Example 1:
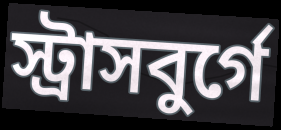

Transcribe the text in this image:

স্ট্রাসবুর্গে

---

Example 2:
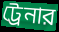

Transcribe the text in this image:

ট্রেনার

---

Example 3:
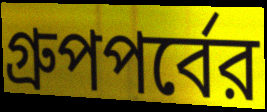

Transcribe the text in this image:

গ্রুপপর্বের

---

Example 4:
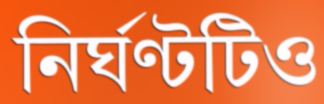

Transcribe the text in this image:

নির্ঘণ্টটিও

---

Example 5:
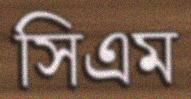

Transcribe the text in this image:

সিএম